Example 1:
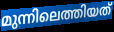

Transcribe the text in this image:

മുന്നിലെത്തിയത്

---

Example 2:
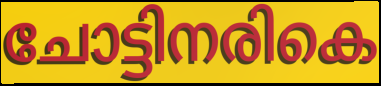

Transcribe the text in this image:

ചോട്ടിനരികെ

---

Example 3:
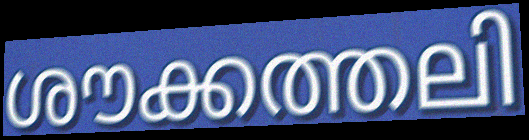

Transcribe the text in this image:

ശൗക്കത്തലി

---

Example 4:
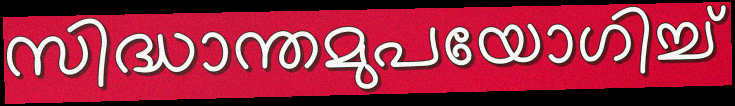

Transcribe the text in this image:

സിദ്ധാന്തമുപയോഗിച്ച്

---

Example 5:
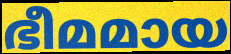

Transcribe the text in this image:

ഭീമമായ